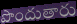
పొందుతారు